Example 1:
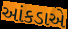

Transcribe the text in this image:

આંકડાએ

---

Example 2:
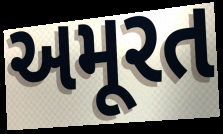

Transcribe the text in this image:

અમૂરત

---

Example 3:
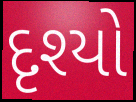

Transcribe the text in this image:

દૃશ્યો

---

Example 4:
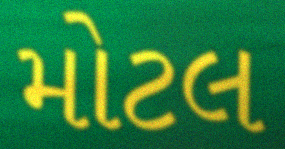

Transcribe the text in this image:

મોટલ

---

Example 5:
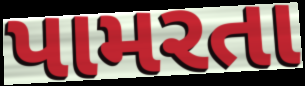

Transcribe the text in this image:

પામરતા